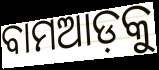
ବାମଆଡ଼କୁ